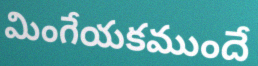
మింగేయకముందే